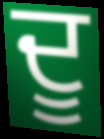
ਦੂ